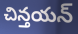
చిన్తయన్